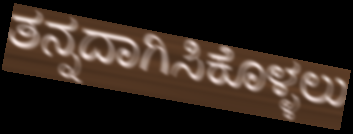
ತನ್ನದಾಗಿಸಿಕೊಳ್ಳಲು